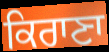
ਕਿਰਾਣਾ